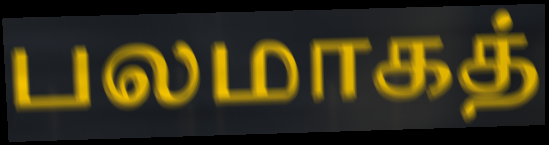
பலமாகத்